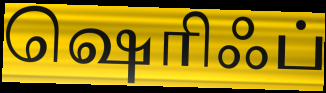
ஷெரிஃப்